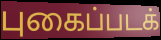
புகைப்படக்